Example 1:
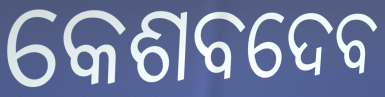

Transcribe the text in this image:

କେଶବଦେବ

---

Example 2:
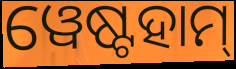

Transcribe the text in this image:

ୱେଷ୍ଟହାମ୍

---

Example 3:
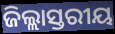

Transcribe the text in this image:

ଜିଲ୍ଲାସ୍ତରୀୟ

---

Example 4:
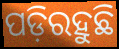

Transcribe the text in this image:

ପଡ଼ିରହୁଛି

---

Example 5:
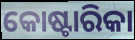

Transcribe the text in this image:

କୋଷ୍ଟାରିକା